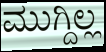
ಮುಗ್ದಿಲ್ಲ